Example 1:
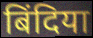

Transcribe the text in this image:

बिंदिया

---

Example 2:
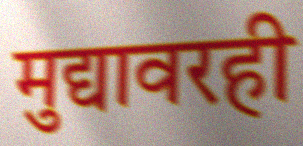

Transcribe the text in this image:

मुद्यावरही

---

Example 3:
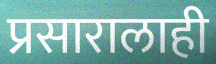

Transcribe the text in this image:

प्रसारालाही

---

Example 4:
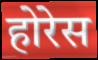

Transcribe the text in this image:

होरेस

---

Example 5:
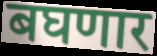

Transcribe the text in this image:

बघणार